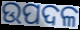
ଉପଦଳ